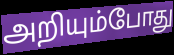
அறியும்போது